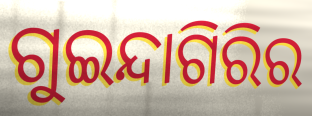
ଗୁଇନ୍ଦାଗିରିର